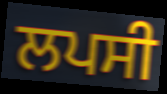
ਲਪਸੀ